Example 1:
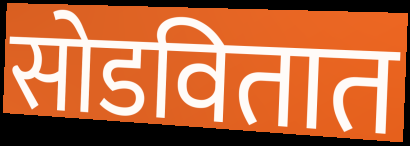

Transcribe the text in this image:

सोडवितात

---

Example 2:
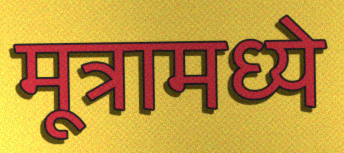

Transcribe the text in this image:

मूत्रामध्ये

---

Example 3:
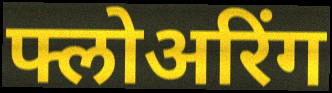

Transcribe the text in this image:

फ्लोअरिंग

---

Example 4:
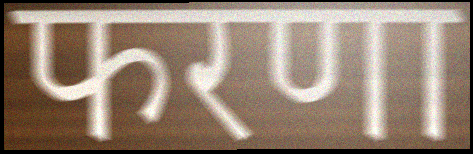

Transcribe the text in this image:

फरणा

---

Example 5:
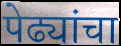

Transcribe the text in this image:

पेढ्यांचा